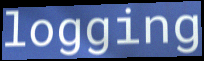
logging